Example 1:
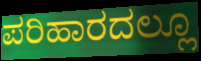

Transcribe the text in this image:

ಪರಿಹಾರದಲ್ಲೂ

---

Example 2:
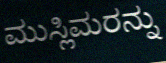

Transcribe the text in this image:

ಮುಸ್ಲಿಮರನ್ನು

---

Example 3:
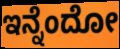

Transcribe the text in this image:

ಇನ್ನೆಂದೋ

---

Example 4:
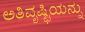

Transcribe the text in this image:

ಅತಿವೃಷ್ಟಿಯನ್ನು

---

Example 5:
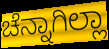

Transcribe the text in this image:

ಚೆನ್ನಾಗಿಲ್ಲಾ